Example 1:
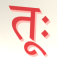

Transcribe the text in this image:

तूः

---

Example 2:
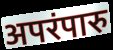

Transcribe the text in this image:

अपरंपारु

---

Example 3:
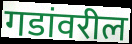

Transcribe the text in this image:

गडांवरील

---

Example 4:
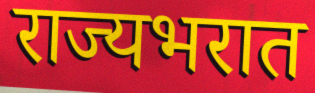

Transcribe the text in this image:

राज्यभरात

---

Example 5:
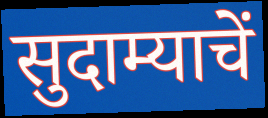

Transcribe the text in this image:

सुदाम्याचें